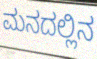
ಮನದಲ್ಲಿನ